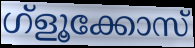
ഗ്ളൂക്കോസ്